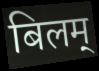
बिलम्